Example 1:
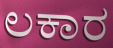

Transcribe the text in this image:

ಲಕಾರ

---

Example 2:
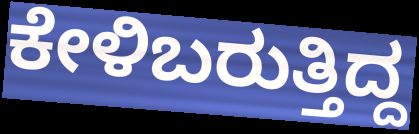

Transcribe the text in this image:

ಕೇಳಿಬರುತ್ತಿದ್ದ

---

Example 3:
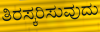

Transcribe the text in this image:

ತಿರಸ್ಕರಿಸುವುದು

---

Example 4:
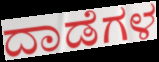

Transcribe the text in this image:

ದಾಡೆಗಳ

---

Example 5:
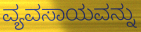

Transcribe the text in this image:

ವ್ಯವಸಾಯವನ್ನು